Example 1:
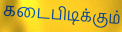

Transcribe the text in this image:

கடைபிடிக்கும்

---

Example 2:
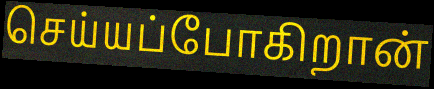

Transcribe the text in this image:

செய்யப்போகிறான்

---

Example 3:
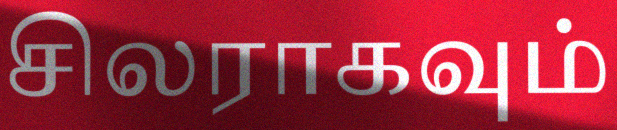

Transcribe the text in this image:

சிலராகவும்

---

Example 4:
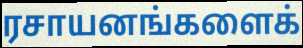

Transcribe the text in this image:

ரசாயனங்களைக்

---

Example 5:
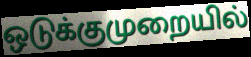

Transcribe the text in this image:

ஒடுக்குமுறையில்